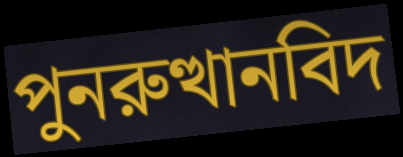
পুনরুত্থানবিদ